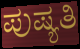
ಪುಷ್ಯತಿ